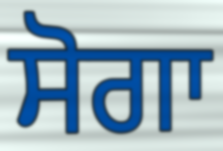
ਸੋਗਾ